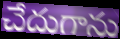
చేదుగాను